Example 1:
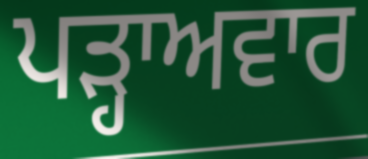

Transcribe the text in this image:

ਪੜ੍ਹਾਅਵਾਰ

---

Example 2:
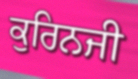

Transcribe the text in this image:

ਕੁਰਿਨਜੀ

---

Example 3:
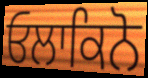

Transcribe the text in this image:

ਓਲਾਕਿਨੋ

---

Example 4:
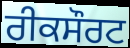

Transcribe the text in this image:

ਰੀਕਸੌਰਟ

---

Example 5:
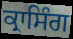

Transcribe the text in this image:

ਕ੍ਰਾਸਿੰਗ